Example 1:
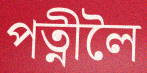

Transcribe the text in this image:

পত্নীলৈ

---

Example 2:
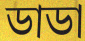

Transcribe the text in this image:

ডাডা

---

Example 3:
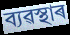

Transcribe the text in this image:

ব্য়ৱস্থাৰ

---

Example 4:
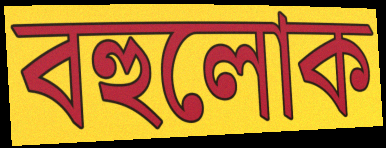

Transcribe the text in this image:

বহুলোক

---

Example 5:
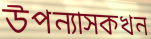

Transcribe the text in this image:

উপন্যাসকখন